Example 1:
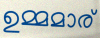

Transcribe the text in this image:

ഉമ്മമാര്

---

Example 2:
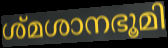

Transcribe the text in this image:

ശ്മശാനഭൂമി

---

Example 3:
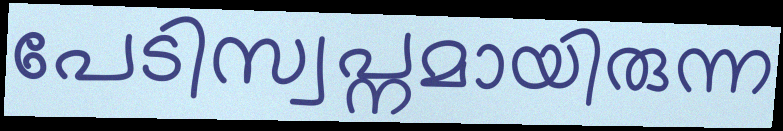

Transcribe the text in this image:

പേടിസ്വപ്നമായിരുന്ന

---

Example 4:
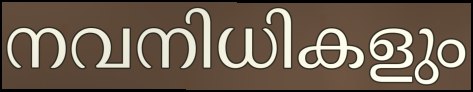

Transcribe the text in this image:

നവനിധികളും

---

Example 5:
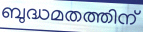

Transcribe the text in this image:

ബുദ്ധമതത്തിന്